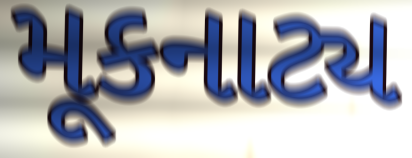
મૂકનાટ્ય